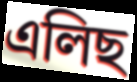
এলিছ